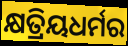
କ୍ଷତ୍ରିୟଧର୍ମର